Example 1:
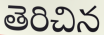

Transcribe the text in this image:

తెరిచిన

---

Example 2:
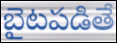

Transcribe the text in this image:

బైటపడితే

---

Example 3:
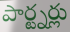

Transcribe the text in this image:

పార్ట్నర్లు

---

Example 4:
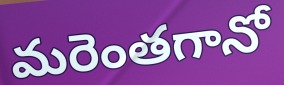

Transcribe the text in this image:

మరెంతగానో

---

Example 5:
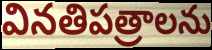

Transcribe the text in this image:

వినతిపత్రాలను